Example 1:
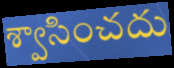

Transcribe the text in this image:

శ్వాసించదు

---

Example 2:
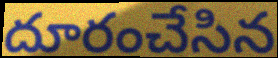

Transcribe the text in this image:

దూరంచేసిన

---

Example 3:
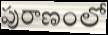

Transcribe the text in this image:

పురాణంలో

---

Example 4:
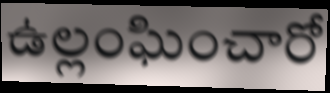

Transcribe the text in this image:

ఉల్లంఘించారో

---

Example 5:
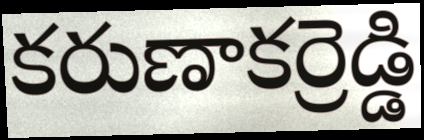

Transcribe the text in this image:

కరుణాకర్రెడ్డి